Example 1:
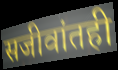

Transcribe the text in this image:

सजीवांतही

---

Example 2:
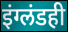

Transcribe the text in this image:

इंग्लंडही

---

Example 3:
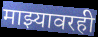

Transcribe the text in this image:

माझ्यावरही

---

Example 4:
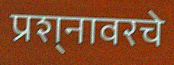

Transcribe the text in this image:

प्रश्नावरचे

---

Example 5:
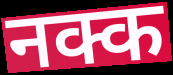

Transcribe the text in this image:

नक्क